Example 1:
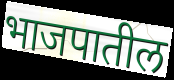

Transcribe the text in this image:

भाजपातील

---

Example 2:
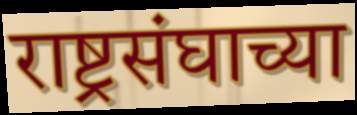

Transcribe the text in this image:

राष्ट्रसंघाच्या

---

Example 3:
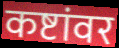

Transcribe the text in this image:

कष्टांवर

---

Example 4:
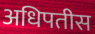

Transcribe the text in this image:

अधिपतीस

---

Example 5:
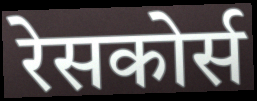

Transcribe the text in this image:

रेसकोर्स